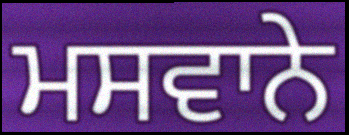
ਮਸਵਾਨੇ